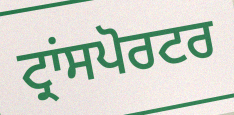
ਟ੍ਰਾਂਸਪੋਰਟਰ